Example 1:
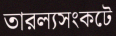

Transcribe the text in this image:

তারল্যসংকটে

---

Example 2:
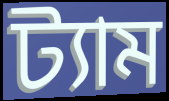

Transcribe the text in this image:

ট্যাম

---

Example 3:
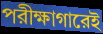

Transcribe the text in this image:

পরীক্ষাগারেই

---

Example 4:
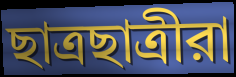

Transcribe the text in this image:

ছাত্রছাত্রীরা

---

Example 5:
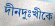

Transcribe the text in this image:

দীনদুঃখীকে